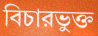
বিচারভুক্ত